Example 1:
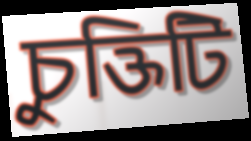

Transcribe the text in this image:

চুক্তিটি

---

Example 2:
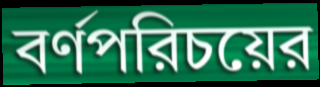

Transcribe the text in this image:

বর্ণপরিচয়ের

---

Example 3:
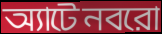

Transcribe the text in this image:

অ্যাটেনবরো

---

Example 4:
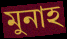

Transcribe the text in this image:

মুনাহ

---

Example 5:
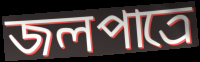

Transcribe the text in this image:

জলপাত্রে